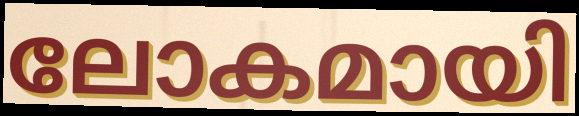
ലോകമായി